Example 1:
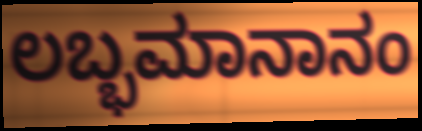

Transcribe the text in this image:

ಲಬ್ಭಮಾನಾನಂ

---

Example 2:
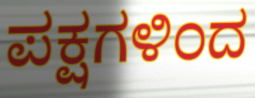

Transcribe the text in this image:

ಪಕ್ಷಗಳಿಂದ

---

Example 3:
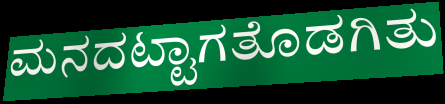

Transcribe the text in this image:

ಮನದಟ್ಟಾಗತೊಡಗಿತು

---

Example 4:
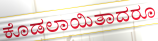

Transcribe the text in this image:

ಕೊಡಲಾಯಿತಾದರೂ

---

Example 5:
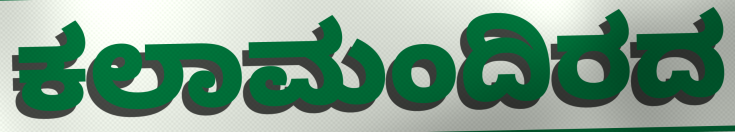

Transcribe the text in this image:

ಕಲಾಮಂದಿರದ